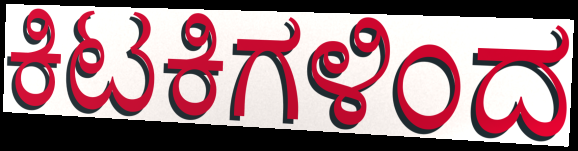
ಕಿಟಕಿಗಳಿಂದ